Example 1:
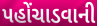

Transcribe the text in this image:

પહોંચાડવાની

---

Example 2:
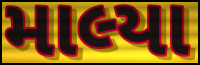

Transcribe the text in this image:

માલ્યા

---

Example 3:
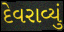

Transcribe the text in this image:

દેવરાવ્યું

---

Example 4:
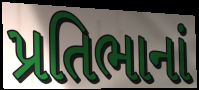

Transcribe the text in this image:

પ્રતિભાનાં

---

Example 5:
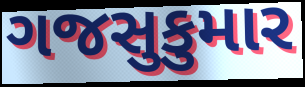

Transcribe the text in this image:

ગજસુકુમાર